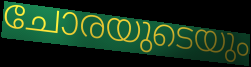
ചോരയുടെയും